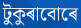
টুকুৰাবোৰে